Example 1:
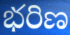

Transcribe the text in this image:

భరిణ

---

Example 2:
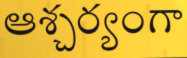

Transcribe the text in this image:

ఆశ్చర్యంగా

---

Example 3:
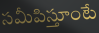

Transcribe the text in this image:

సమీపిస్తూంటే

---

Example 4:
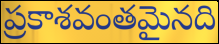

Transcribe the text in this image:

ప్రకాశవంతమైనది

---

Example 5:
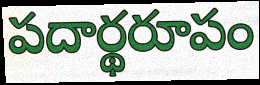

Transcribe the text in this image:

పదార్థరూపం